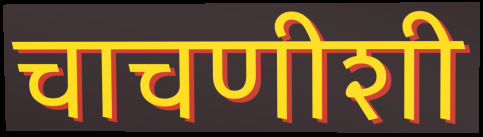
चाचणीशी